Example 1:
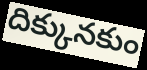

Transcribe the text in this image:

దిక్కునకుం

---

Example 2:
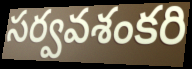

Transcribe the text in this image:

సర్వవశంకరి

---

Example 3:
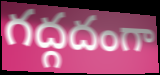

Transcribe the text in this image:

గద్గదంగా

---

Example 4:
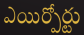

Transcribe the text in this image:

ఎయిర్పోర్టు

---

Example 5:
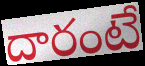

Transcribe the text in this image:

దారంటే